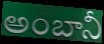
అంబానీ